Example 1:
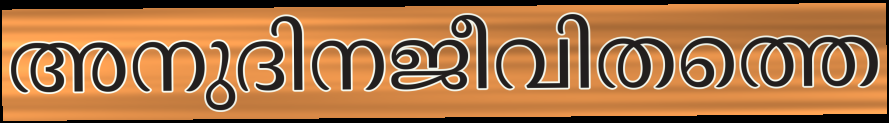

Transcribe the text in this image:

അനുദിനജീവിതത്തെ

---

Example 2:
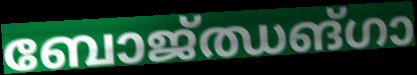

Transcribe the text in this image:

ബോജ്ഝങ്ഗാ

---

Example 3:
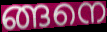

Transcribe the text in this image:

ങ്ങനെ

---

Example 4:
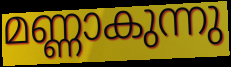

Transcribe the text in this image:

മണ്ണാകുന്നു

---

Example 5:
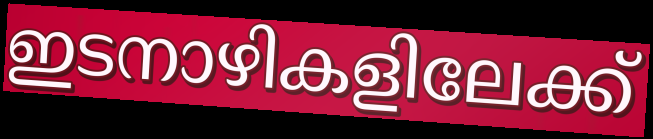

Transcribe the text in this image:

ഇടനാഴികളിലേക്ക്